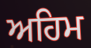
ਅਹਿਮ